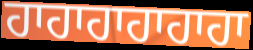
ਹਾਹਾਹਾਹਾਹਾਹਾ